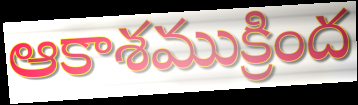
ఆకాశముక్రింద